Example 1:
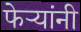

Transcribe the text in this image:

फेऱ्यांनी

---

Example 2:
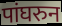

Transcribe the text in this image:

पांघरुन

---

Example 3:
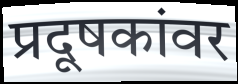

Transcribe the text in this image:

प्रदूषकांवर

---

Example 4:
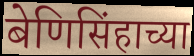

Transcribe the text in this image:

बेणिसिंहाच्या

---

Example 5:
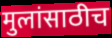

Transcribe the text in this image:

मुलांसाठीच